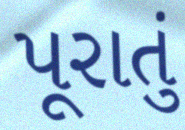
પૂરાતું